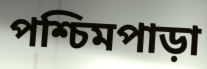
পশ্চিমপাড়া